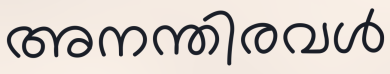
അനന്തിരവൾ